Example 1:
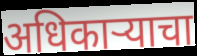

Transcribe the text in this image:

अधिकार्‍याचा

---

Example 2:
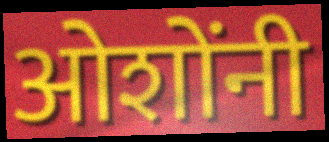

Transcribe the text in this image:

ओशोंनी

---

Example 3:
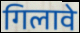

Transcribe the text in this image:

गिलावे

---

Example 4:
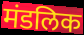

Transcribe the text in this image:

मंडलिक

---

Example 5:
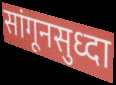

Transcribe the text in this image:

सांगूनसुध्दा